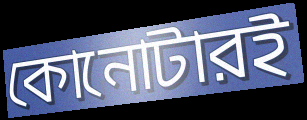
কোনোটারই